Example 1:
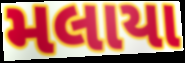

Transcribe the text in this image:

મલાયા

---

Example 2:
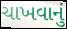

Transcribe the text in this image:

ચાખવાનું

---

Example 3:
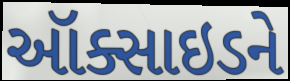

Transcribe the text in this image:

ઑક્સાઇડને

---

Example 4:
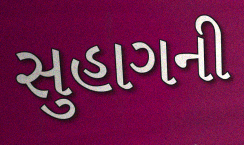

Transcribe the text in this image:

સુહાગની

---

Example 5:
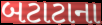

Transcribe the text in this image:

બટાટાના